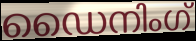
ഡൈനിംഗ്